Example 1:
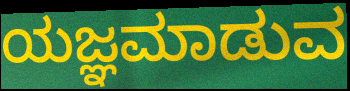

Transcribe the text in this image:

ಯಜ್ಞಮಾಡುವ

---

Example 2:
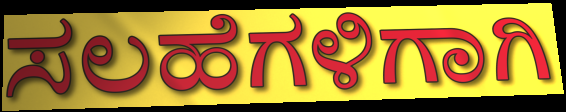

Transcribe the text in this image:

ಸಲಹೆಗಳಿಗಾಗಿ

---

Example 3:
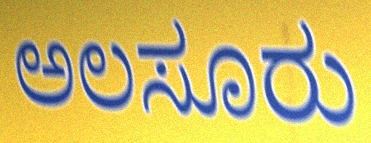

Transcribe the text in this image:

ಅಲಸೂರು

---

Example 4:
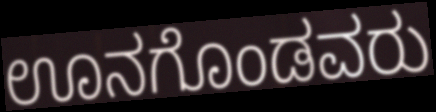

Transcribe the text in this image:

ಊನಗೊಂಡವರು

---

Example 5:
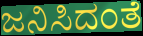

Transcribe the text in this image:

ಜನಿಸಿದಂತೆ